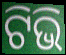
ଟିଭି